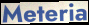
Meteria